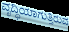
ವೃದ್ಧಿಯಾಗುತ್ತಿರುವ